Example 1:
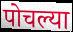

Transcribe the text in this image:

पोचल्या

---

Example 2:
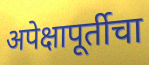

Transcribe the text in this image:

अपेक्षापूर्तीचा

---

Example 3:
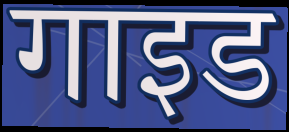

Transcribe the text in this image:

गाइड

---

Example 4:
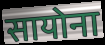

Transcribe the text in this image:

सायोना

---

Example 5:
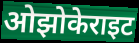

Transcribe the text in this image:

ओझोकेराइट